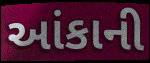
આંકાની